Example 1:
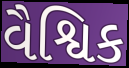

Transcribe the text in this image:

વૈશ્વિક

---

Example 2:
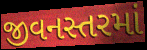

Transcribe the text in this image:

જીવનસ્તરમાં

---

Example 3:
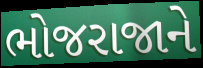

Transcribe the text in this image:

ભોજરાજાને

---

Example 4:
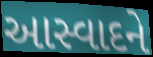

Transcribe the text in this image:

આસ્વાદને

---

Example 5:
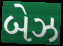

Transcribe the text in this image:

બેઝ